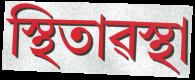
স্থিতাৱস্থা